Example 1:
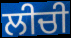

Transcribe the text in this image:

ਲੀਚੀ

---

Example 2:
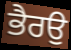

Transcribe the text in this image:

ਭੈਰਉ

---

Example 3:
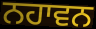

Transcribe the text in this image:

ਨਹਾਵਨ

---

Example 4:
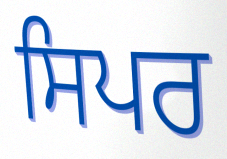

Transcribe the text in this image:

ਸਿਪਰ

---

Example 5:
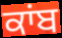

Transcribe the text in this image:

ਕਾਂਬ